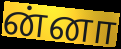
ன்னா